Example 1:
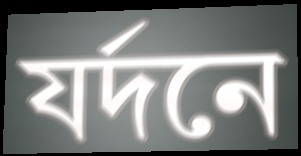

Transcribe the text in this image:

যর্দনে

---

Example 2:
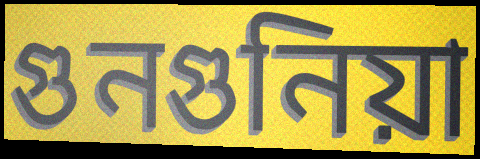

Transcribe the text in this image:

গুনগুনিয়া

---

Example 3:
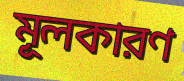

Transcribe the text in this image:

মূলকারণ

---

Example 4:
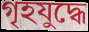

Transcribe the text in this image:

গৃহযুদ্ধে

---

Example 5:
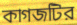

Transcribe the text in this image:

কাগজটির